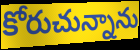
కోరుచున్నాను